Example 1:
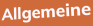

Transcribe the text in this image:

Allgemeine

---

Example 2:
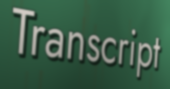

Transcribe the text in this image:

Transcript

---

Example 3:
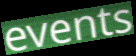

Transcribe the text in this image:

events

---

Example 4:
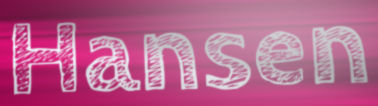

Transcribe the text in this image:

Hansen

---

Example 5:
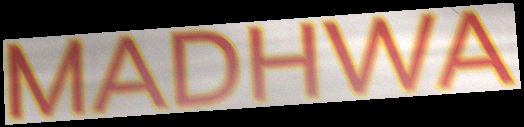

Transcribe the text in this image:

MADHWA